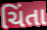
ચિંતા